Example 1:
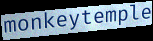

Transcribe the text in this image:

monkeytemple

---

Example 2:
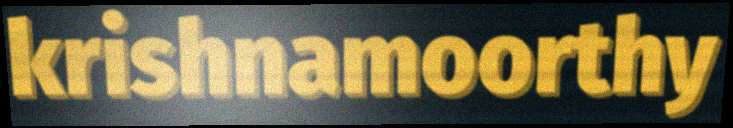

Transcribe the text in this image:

krishnamoorthy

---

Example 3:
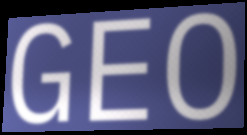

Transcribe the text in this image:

GEO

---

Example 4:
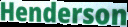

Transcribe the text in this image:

Henderson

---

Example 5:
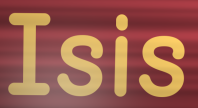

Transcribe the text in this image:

Isis